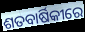
ଶତବାର୍ଷିକୀରେ